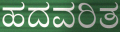
ಹದವರಿತ